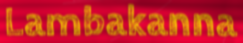
Lambakanna